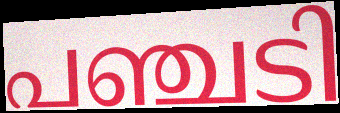
പഞ്ചടി